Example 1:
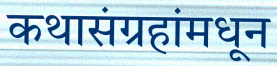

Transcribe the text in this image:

कथासंग्रहांमधून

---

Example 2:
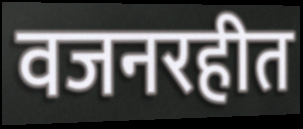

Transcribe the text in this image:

वजनरहीत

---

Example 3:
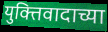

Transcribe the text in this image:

युक्तिवादाच्या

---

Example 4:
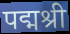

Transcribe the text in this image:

पद्मश्री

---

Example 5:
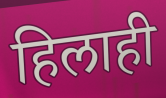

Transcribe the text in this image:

हिलाही